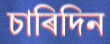
চাৰিদিন